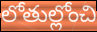
లోతుల్లోంచి